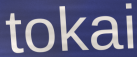
tokai